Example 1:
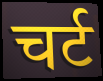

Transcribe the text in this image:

चर्ट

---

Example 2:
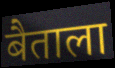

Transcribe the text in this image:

बैताला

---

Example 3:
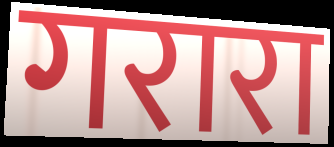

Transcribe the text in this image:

गरारा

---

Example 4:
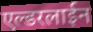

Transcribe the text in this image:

एल्डरलाईन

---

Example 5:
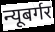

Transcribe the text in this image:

न्यूबर्गर